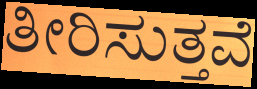
ತೀರಿಸುತ್ತವೆ